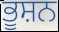
ਭੂਸ਼ਨ